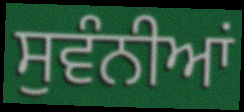
ਸੁਵੰਨੀਆਂ